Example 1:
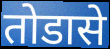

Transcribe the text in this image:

तोडासे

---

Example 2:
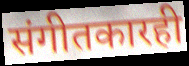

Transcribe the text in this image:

संगीतकारही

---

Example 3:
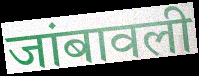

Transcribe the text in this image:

जांबावली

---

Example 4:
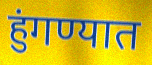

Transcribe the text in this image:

हुंगण्यात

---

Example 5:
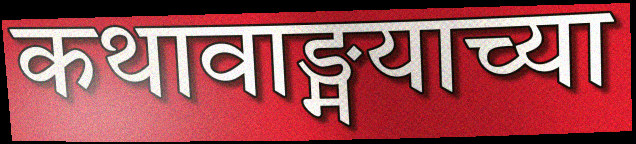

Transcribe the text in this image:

कथावाङ्मयाच्या